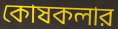
কোষকলার